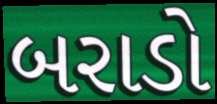
બરાડો